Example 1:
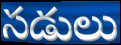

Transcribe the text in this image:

సడులు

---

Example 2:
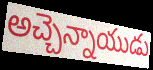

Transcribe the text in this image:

అచ్చెన్నాయుడు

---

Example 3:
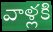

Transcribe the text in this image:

వాళ్లకి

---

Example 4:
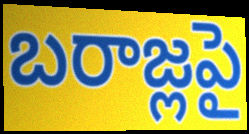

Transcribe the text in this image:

బరాజ్లపై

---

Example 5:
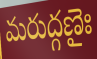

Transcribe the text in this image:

మరుద్గణైః